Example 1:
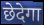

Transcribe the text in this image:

छेदेगा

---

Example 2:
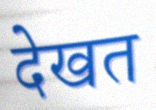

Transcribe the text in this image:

देखत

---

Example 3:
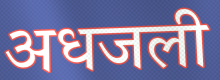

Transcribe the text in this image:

अधजली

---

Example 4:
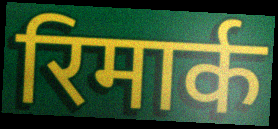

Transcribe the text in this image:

रिमार्क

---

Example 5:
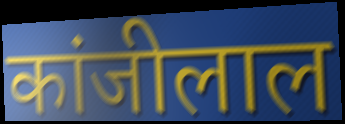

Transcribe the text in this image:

कांजीलाल